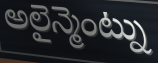
అలైన్మెంట్ను